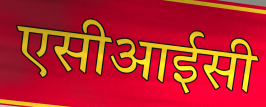
एसीआईसी